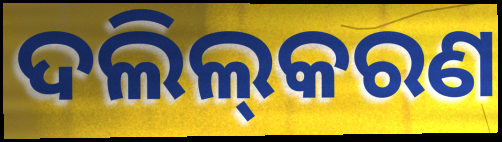
ଦଲିଲ୍‌କରଣ